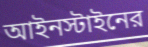
আইনস্টাইনের